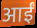
आईं